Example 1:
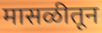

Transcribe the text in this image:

मासळीतून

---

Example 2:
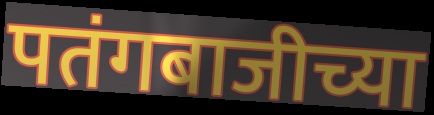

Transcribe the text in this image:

पतंगबाजीच्या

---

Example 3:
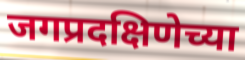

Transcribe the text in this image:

जगप्रदक्षिणेच्या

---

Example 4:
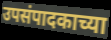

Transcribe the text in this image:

उपसंपादकाच्या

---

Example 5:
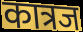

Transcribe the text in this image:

कात्रज